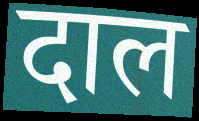
दाल